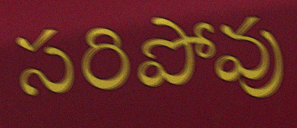
సరిపోవు